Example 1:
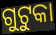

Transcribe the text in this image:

ଗୁଟୁକା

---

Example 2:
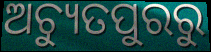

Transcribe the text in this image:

ଅଚ୍ୟୁତପୁରରୁ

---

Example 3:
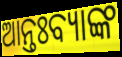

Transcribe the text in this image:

ଆନ୍ତଃବ୍ୟାଙ୍କ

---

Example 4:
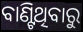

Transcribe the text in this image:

ବାଣ୍ଟିଥିବାରୁ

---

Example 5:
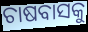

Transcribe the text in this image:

ଚାଷବାସକୁ